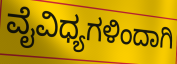
ವೈವಿಧ್ಯಗಳಿಂದಾಗಿ